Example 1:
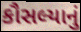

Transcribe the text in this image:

કૌસલ્યાનું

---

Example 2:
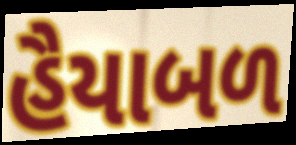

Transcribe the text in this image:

હૈયાબળ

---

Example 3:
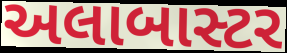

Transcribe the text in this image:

અલાબાસ્ટર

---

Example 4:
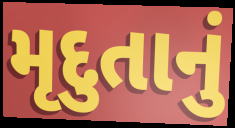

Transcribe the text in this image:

મૃદુતાનું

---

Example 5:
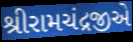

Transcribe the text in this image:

શ્રીરામચંદ્રજીએ